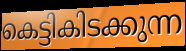
കെട്ടികിടക്കുന്ന